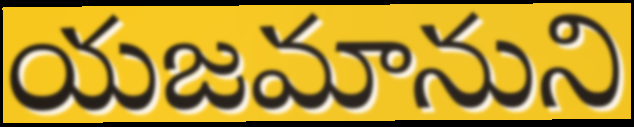
యజమానుని